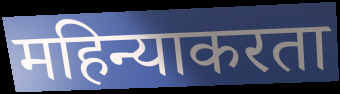
महिन्याकरता